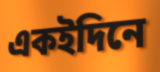
একইদিনে